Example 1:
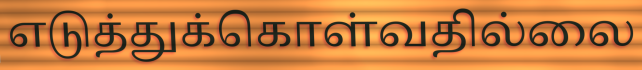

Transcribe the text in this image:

எடுத்துக்கொள்வதில்லை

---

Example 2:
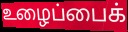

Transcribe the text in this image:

உழைப்பைக்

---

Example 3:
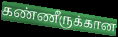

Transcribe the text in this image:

கண்ணீருக்கான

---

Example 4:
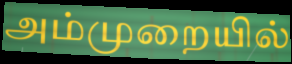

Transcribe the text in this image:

அம்முறையில்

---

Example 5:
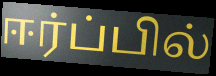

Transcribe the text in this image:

ஈர்ப்பில்